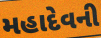
મહાદેવની